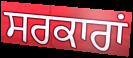
ਸਰਕਾਰਾਂ